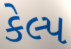
કેલ્પ